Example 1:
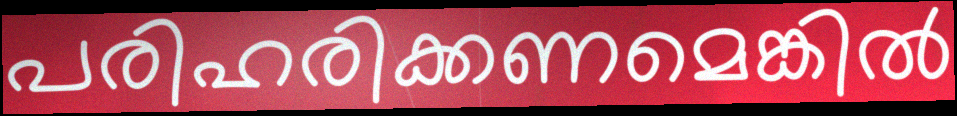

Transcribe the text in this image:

പരിഹരിക്കണമെങ്കിൽ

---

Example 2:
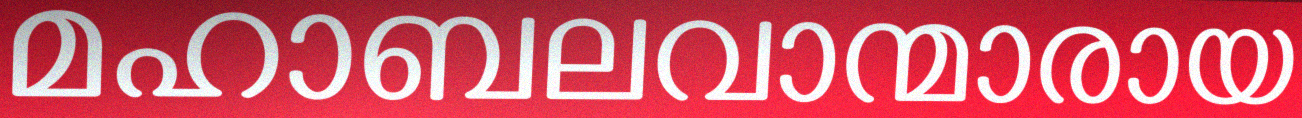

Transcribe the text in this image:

മഹാബലവാന്മാരായ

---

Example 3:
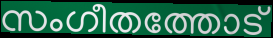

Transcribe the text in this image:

സംഗീതത്തോട്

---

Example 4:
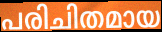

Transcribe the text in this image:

പരിചിതമായ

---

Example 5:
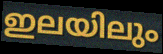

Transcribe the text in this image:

ഇലയിലും